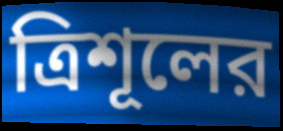
ত্রিশূলের